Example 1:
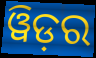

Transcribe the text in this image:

ୱିଡ଼ର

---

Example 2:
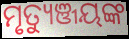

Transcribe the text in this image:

ମୃତ୍ୟୁଞ୍ଜୟଙ୍କ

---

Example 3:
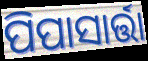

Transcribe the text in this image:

ପିପାସାର୍ତ୍ତା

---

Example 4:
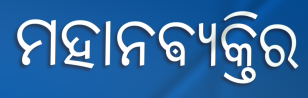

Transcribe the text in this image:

ମହାନଵ୍ୟକ୍ତିର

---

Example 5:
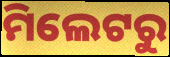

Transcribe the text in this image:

ମିଲେଟରୁ